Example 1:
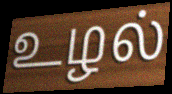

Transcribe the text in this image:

உழல்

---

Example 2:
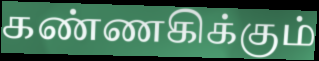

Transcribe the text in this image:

கண்ணகிக்கும்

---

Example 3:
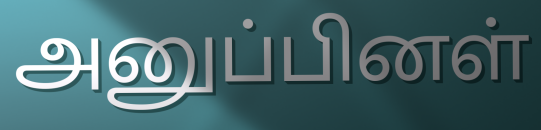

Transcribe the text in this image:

அனுப்பினள்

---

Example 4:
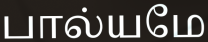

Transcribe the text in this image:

பால்யமே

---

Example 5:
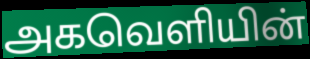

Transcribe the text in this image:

அகவெளியின்